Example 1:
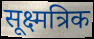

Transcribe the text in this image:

सूक्ष्मत्रिक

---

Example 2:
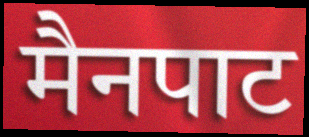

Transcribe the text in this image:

मैनपाट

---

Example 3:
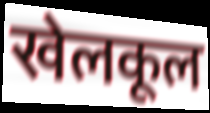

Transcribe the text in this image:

खेलकूल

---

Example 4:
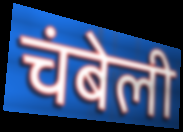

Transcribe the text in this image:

चंबेली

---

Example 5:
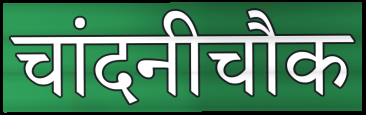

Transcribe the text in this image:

चांदनीचौक